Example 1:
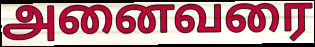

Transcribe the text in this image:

அனைவரை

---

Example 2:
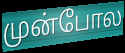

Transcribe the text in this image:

முன்போல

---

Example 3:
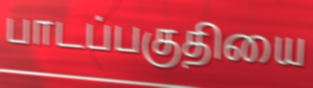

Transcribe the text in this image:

பாடப்பகுதியை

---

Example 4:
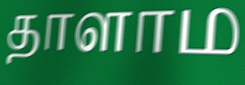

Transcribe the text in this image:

தாளாம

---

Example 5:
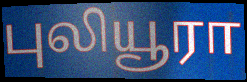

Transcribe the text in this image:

புலியூரா